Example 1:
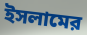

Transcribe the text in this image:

ইসলামের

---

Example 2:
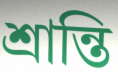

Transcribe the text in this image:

শ্রান্তি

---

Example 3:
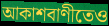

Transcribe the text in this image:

আকাশবাণীতেও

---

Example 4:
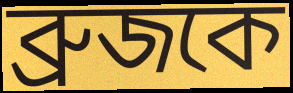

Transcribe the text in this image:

ব্রুজকে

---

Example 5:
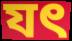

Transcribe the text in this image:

যৎ